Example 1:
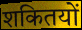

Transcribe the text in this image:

शकितयों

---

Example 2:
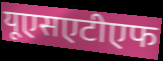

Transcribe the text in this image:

यूएसएटीएफ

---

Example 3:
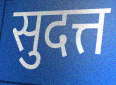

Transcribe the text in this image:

सुदत्त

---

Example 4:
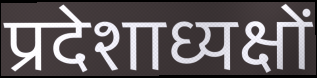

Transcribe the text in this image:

प्रदेशाध्यक्षों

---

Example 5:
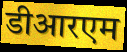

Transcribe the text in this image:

डीआरएम